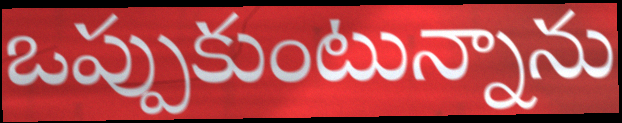
ఒప్పుకుంటున్నాను